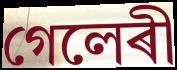
গেলেৰী